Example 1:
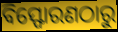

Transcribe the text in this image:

ବିସ୍ଫୋରଣଠାରୁ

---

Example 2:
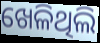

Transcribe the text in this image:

ଖେଳିଥିଲି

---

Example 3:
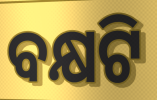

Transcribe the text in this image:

ବକ୍ଷଟି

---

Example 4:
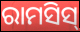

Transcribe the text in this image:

ରାମସିସ୍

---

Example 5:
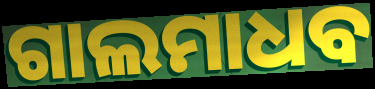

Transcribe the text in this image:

ଗାଲମାଧବ